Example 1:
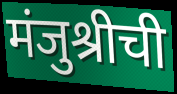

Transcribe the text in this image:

मंजुश्रीची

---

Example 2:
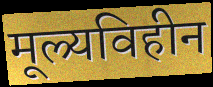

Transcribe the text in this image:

मूल्यविहीन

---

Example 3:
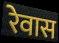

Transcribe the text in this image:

रेवास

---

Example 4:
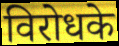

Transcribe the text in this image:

विरोधके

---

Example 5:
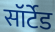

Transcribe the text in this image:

सॉर्टेड